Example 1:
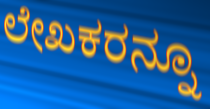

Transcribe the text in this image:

ಲೇಖಕರನ್ನೂ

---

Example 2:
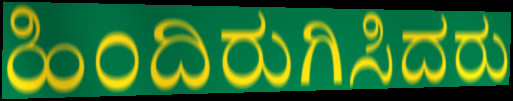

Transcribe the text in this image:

ಹಿಂದಿರುಗಿಸಿದರು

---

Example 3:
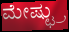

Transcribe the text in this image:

ಮೇಷ್ಟ್ರು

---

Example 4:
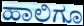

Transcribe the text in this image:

ಹಾಲಿಗೂ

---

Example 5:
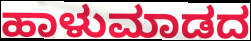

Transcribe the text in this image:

ಹಾಳುಮಾಡದ